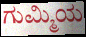
ಗುಮ್ಮಿಯ